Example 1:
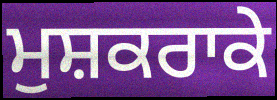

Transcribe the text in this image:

ਮੁਸ਼ਕਰਾਕੇ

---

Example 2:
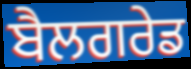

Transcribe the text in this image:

ਬੈਲਗਰੇਡ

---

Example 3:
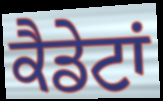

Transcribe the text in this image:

ਕੈਡੇਟਾਂ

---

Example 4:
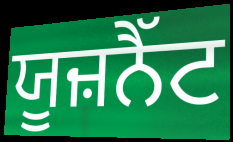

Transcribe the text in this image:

ਯੂਜ਼ਨੈੱਟ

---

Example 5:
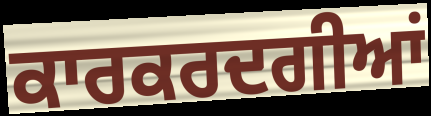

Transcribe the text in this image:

ਕਾਰਕਰਦਗੀਆਂ